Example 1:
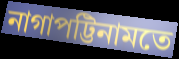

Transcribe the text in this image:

নাগাপট্টিনামতে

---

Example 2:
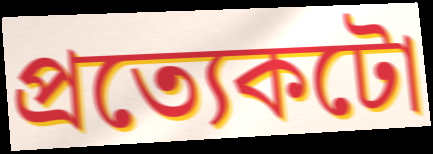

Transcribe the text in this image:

প্ৰত্যেকটো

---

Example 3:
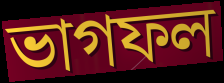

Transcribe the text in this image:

ভাগফল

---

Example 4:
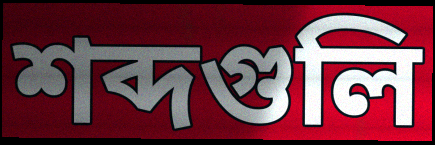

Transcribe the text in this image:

শব্দগুলি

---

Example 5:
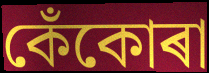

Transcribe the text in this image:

কেঁকোৰা